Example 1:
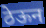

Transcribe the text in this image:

ठेऊन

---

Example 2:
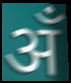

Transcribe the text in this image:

अँ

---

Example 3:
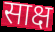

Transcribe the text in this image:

साक्ष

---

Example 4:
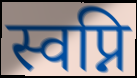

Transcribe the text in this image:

स्वप्नि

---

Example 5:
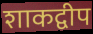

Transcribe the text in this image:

शाकद्वीप